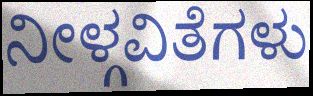
ನೀಳ್ಗವಿತೆಗಳು